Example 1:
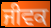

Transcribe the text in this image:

ਜੀਵਕ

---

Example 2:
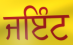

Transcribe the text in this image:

ਜਇੰਟ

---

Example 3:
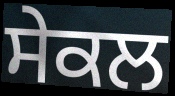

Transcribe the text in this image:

ਸੇਕਲ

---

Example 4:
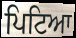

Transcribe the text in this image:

ਪਿਟਿਆ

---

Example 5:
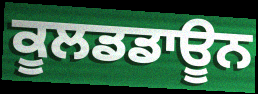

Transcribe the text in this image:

ਕੂਲਡਡਾਊਨ